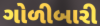
ગોળીબારી